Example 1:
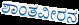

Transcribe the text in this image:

ಶಾಂತವೀರನ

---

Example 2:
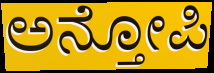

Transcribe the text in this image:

ಅನ್ತೋಪಿ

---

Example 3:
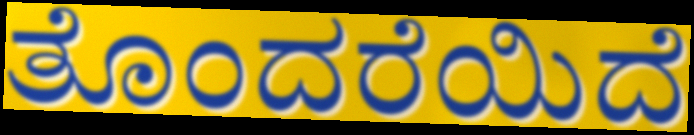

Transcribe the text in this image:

ತೊಂದರೆಯಿದೆ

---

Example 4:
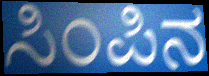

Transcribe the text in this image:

ಸಿಂಪಿನ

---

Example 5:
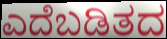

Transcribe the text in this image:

ಎದೆಬಡಿತದ